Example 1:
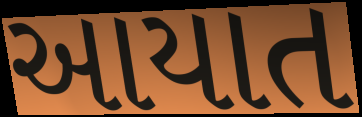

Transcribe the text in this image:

આયાત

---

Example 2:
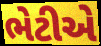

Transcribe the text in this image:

ભેટીએ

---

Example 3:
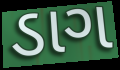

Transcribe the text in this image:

ડાગ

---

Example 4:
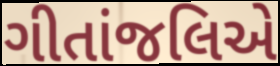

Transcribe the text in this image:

ગીતાંજલિએ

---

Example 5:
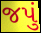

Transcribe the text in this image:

જપું